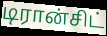
டிரான்சிட்